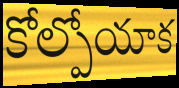
కోల్పోయాక